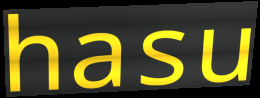
hasu